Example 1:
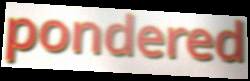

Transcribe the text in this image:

pondered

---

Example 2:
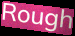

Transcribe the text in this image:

Rough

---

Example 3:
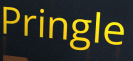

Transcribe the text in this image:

Pringle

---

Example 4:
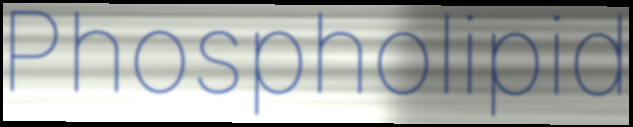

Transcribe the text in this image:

Phospholipid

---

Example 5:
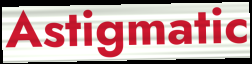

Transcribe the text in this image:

Astigmatic